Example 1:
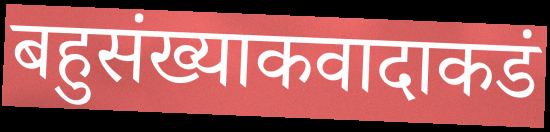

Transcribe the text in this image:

बहुसंख्याकवादाकडं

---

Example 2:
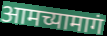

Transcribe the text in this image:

आमच्यामागं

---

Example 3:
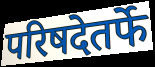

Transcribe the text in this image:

परिषदेतर्फे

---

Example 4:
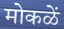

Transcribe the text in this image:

मोकळें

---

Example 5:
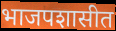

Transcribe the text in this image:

भाजपशासीत